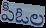
పీఓల